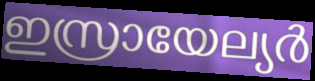
ഇസ്രായേല്യർ